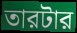
তারটার